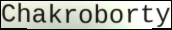
Chakroborty